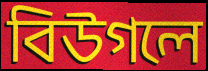
বিউগলে